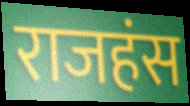
राजहंस